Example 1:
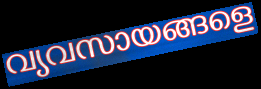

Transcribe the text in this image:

വ്യവസായങ്ങളെ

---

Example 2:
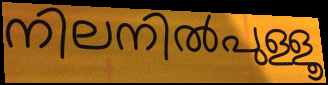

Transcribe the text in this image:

നിലനിൽപുള്ളൂ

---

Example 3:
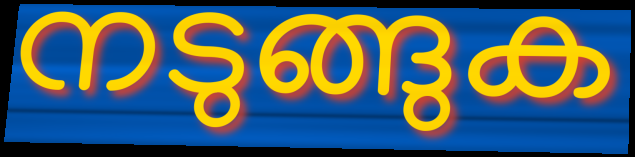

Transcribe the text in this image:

നടുങ്ങുക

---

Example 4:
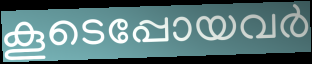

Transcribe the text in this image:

കൂടെപ്പോയവർ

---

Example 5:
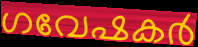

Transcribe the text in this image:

ഗവേഷകർ